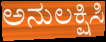
ಅನುಲಕ್ಷಿಸಿ